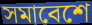
সমাবেশে